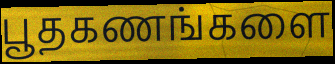
பூதகணங்களை